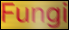
Fungi